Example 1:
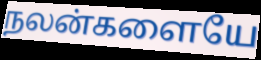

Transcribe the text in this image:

நலன்களையே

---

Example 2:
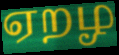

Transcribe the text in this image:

ஏறழ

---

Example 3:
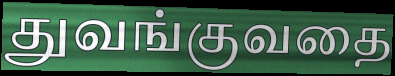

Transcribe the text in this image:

துவங்குவதை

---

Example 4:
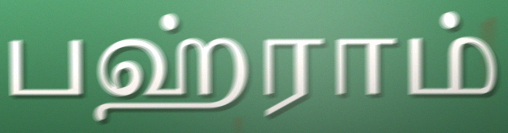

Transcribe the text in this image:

பஹ்ராம்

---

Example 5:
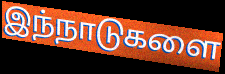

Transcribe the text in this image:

இந்நாடுகளை